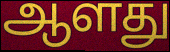
ஆளது